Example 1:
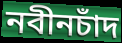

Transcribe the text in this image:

নবীনচাঁদ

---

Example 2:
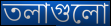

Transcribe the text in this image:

তলাগুলো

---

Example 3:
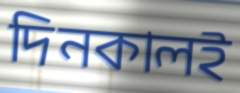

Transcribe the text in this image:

দিনকালই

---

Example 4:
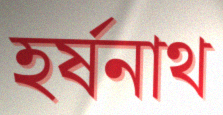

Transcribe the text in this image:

হর্ষনাথ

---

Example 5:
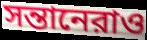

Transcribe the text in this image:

সন্তানেরাও